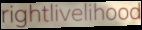
rightlivelihood